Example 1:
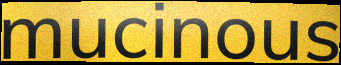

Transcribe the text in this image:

mucinous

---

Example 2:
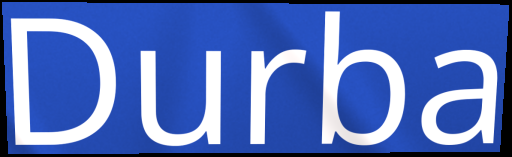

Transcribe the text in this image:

Durba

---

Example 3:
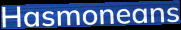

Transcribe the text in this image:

Hasmoneans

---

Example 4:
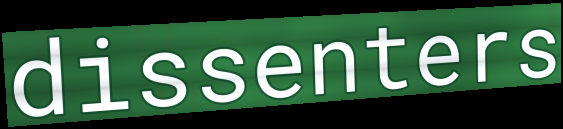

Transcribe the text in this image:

dissenters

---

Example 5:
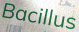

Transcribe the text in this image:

Bacillus